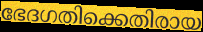
ഭേദഗതിക്കെതിരായ